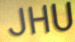
JHU